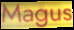
Magus